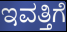
ಇವತ್ತಿಗೆ